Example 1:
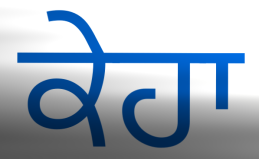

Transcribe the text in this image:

ਕੇਹਾ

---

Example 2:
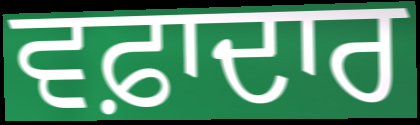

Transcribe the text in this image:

ਵਫ਼ਾਦਾਰ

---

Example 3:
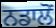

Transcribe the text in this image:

ਨਡਾਲੋਂ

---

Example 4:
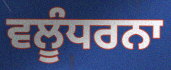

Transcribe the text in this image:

ਵਲੂੰਧਰਨਾ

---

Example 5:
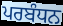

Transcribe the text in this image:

ਪਰਬੰਧਨ